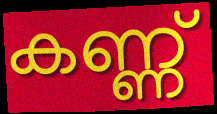
കണ്ണ്